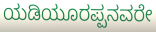
ಯಡಿಯೂರಪ್ಪನವರೇ